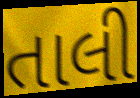
તાલી